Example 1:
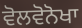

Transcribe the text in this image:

ਵੋਲਵੋਨੋਖਾ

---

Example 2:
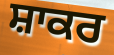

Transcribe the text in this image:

ਸ਼ਾਕਰ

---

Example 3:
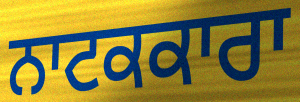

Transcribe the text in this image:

ਨਾਟਕਕਾਰਾ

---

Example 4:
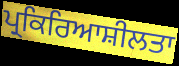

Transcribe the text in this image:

ਪ੍ਰਕਿਰਿਆਸ਼ੀਲਤਾ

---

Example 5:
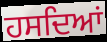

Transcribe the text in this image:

ਹਸਦਿਆਂ